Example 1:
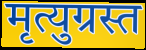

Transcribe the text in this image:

मृत्युग्रस्त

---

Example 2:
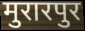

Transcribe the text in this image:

मुरारपुर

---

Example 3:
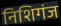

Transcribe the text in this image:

निशिगंज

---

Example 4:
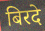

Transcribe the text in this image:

बिरदे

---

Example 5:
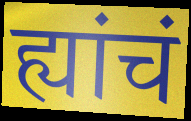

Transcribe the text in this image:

ह्यांचं